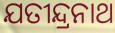
ଯତୀନ୍ଦ୍ରନାଥ